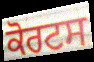
ਕੋਰਟਸ